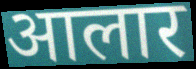
आलार